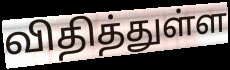
விதித்துள்ள